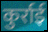
कुर्राई